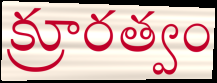
క్రూరత్వం